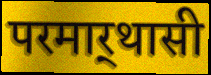
परमार्थासी